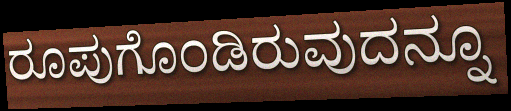
ರೂಪುಗೊಂಡಿರುವುದನ್ನೂ